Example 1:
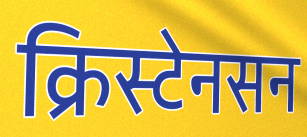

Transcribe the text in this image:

क्रिस्टेनसन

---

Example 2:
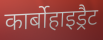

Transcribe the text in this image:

कार्बोहाइड्रैट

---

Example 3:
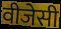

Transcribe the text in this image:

वीजेसी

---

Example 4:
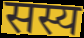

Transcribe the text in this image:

सस्य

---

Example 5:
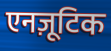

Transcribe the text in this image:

एनज़ूटिक